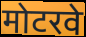
मोटरवे